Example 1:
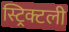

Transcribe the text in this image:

स्ट्रिक्टली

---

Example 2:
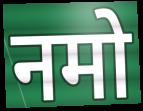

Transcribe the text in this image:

नमो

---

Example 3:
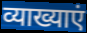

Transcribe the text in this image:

व्याख्याएं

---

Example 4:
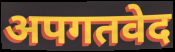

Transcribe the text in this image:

अपगतवेद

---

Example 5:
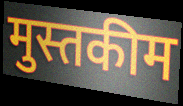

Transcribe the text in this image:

मुस्तकीम